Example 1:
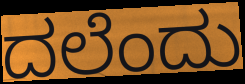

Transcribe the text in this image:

ದಲೆಂದು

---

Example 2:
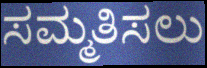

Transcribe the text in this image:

ಸಮ್ಮತಿಸಲು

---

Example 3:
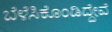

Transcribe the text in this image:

ಬೆಳೆಸಿಕೊಂಡಿದ್ದೇವೆ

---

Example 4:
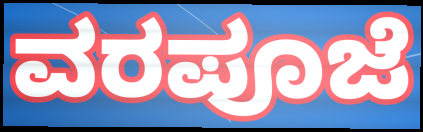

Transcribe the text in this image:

ವರಪೂಜೆ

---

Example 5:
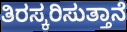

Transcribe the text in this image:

ತಿರಸ್ಕರಿಸುತ್ತಾನೆ